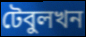
টেবুলখন